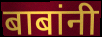
बाबांनी